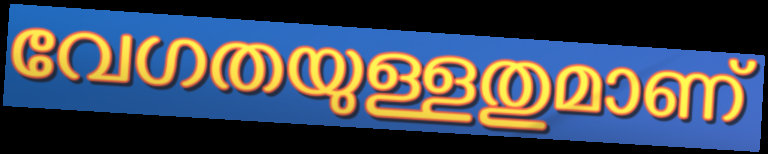
വേഗതയുള്ളതുമാണ്